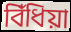
বিঁধিয়া